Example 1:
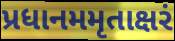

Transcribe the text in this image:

પ્રધાનમમૃતાક્ષરં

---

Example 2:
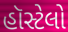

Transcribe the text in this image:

હૉસ્ટેલો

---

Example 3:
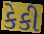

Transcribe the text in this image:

કેકી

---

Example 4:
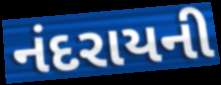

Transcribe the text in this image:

નંદરાયની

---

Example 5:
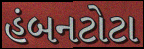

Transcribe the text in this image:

હંબનટોટા